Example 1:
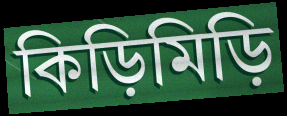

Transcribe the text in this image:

কিড়িমিড়ি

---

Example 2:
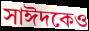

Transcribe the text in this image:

সাঈদকেও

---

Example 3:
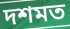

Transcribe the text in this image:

দশমত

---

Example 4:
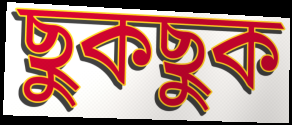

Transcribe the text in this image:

ছুকছুক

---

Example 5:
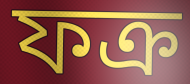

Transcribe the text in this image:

ফক্র